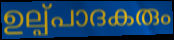
ഉല്പ്പാദകരും